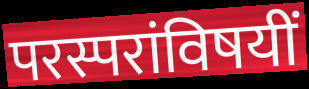
परस्परांविषयीं